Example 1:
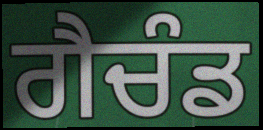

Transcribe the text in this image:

ਗੈਚੰਡ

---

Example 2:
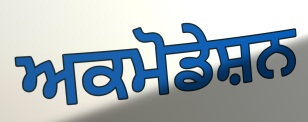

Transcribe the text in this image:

ਅਕਮੋਡੇਸ਼ਨ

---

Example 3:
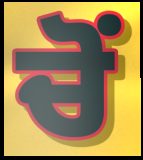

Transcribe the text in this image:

ਚੋਂ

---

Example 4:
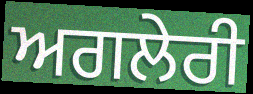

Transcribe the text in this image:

ਅਗਲੇਰੀ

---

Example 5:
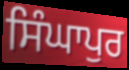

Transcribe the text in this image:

ਸਿੰਘਾਪੁਰ